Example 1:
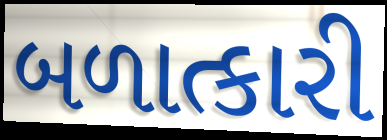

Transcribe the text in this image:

બળાત્કારી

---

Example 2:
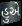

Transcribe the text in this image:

હુએ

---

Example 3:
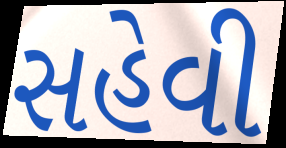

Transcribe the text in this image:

સહેવી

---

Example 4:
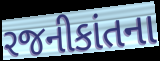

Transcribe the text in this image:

રજનીકાંતના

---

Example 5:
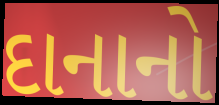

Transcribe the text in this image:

દાનાનો